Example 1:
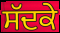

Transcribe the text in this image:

ਸੱਦਕੇ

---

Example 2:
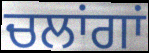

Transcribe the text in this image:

ਚਲਾਂਗਾਂ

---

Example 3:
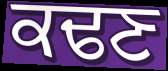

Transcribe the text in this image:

ਕਢਣ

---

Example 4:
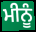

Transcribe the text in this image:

ਮੀਨੂੰ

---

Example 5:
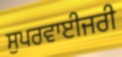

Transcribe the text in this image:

ਸੁਪਰਵਾਈਜਰੀ